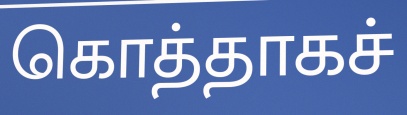
கொத்தாகச்